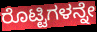
ರೊಟ್ಟಿಗಳನ್ನೇ